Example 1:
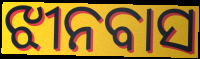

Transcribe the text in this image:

ଝୀନବାସ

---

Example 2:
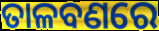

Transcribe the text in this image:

ତାଳବଣରେ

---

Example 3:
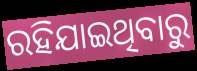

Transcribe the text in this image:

ରହିଯାଇଥିବାରୁ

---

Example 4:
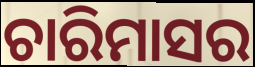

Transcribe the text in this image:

ଚାରିମାସର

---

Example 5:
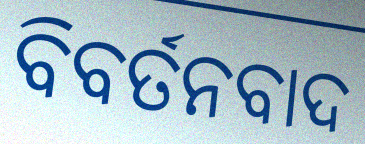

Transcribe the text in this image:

ବିବର୍ତନବାଦ